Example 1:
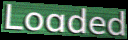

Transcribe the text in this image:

Loaded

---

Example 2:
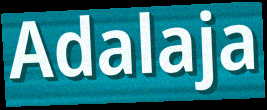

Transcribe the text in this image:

Adalaja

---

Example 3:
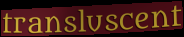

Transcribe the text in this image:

transluscent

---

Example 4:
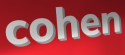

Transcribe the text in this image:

cohen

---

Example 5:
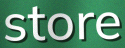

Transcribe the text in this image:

store